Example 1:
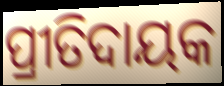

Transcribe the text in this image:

ପ୍ରୀତିଦାୟକ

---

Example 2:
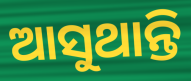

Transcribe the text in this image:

ଆସୁଥାନ୍ତି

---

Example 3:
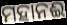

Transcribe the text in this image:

ମହାନଈ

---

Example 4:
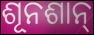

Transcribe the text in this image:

ଶୂନଶାନ୍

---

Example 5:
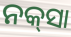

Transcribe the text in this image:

ନକ୍‍ସା